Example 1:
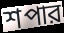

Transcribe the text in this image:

শপার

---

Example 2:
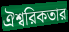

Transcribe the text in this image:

ঐশ্বরিকতার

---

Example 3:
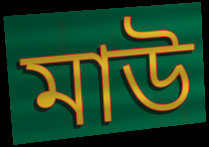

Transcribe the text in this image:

মাউ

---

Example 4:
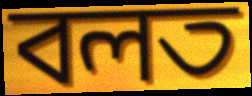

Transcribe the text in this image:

বলত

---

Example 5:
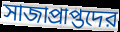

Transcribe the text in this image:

সাজাপ্রাপ্তদের